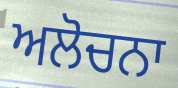
ਅਲੋਚਨਾ